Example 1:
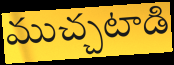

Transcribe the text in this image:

ముచ్చటాడి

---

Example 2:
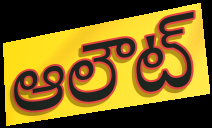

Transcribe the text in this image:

ఆలౌట్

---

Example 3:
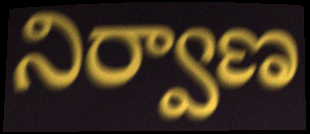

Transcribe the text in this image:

నిర్వాణ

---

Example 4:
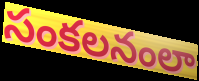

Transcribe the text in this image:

సంకలనంలా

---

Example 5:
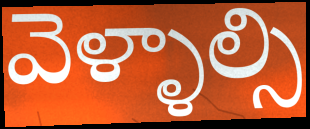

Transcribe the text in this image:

వెళ్ళాల్సి